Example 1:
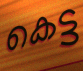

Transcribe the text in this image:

കെട്ട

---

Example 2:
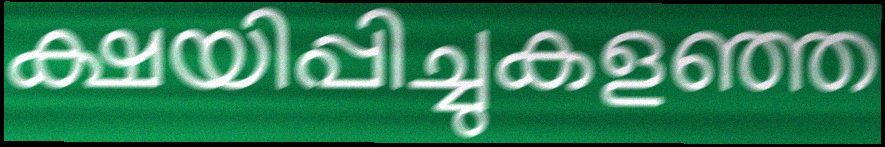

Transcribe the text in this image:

ക്ഷയിപ്പിച്ചുകളഞ്ഞ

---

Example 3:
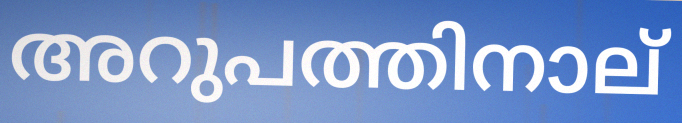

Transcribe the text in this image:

അറുപത്തിനാല്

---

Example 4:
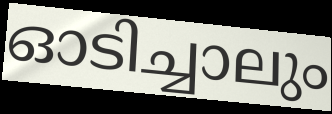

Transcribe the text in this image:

ഓടിച്ചാലും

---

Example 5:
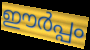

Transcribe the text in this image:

ഈർപ്പം